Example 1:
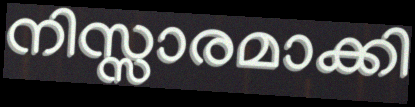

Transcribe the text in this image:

നിസ്സാരമാക്കി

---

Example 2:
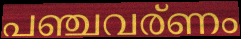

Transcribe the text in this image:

പഞ്ചവര്ണം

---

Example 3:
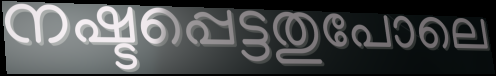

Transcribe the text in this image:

നഷ്ടപ്പെട്ടതുപോലെ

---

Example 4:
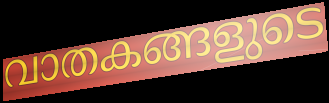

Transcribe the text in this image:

വാതകങ്ങളുടെ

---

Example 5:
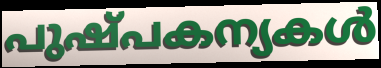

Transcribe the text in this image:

പുഷ്പകന്യകൾ